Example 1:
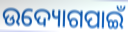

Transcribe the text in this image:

ଉଦ୍ୟୋଗପାଇଁ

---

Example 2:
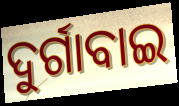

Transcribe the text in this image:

ଦୁର୍ଗାବାଇ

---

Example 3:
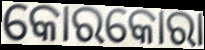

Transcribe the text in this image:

କୋରକୋରା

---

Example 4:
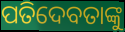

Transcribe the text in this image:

ପତିଦେବତାଙ୍କୁ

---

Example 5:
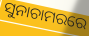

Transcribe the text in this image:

ସୁନାଚାମରରେ